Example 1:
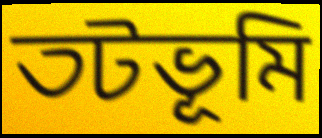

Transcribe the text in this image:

তটভূমি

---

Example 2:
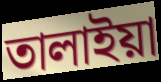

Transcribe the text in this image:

তালাইয়া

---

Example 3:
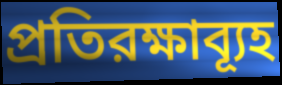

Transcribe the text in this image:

প্রতিরক্ষাব্যূহ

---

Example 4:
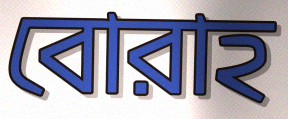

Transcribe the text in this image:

বোরাহ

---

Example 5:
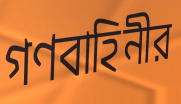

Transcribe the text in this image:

গণবাহিনীর